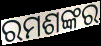
ରମଶଙ୍କର